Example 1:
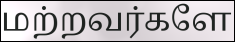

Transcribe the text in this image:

மற்றவர்களே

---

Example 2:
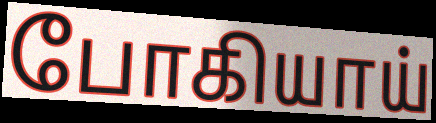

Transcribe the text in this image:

போகியாய்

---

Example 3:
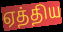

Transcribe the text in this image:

ஏத்திய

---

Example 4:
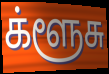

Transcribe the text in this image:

க்ளூசு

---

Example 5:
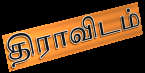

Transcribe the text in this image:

திராவிடம்